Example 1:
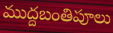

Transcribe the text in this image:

ముద్దబంతిపూలు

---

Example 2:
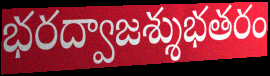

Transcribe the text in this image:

భరద్వాజశ్శుభతరం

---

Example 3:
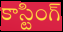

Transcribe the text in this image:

కాస్టింగ్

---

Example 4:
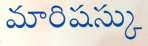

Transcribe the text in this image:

మారిషస్కు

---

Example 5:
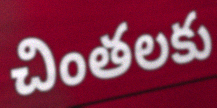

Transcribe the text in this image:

చింతలకు